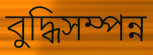
বুদ্ধিসম্পন্ন